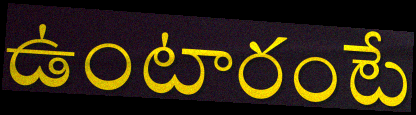
ఉంటారంటే